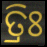
ତ୍ରିଃ